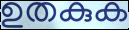
ഉതകുക